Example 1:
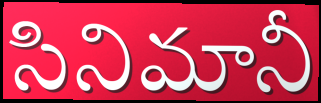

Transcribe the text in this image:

సినిమానీ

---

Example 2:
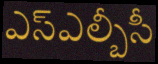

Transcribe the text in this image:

ఎస్ఎల్బీసీ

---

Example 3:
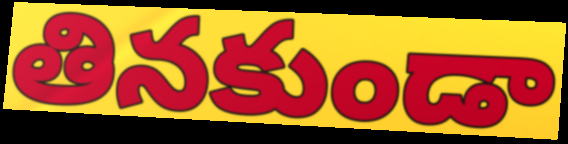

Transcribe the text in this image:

తినకుండా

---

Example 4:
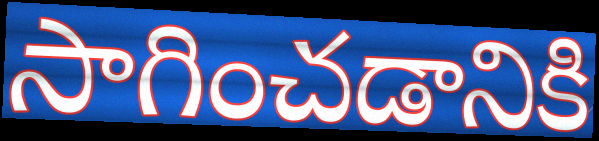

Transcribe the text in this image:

సాగించడానికి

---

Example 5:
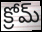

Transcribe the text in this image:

క్రోమ్